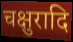
चक्षुरादि